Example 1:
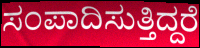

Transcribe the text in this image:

ಸಂಪಾದಿಸುತ್ತಿದ್ದರೆ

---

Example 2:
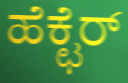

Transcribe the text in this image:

ಹೆಕ್ಟೆರ್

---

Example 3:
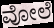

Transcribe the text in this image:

ವೋಲೆ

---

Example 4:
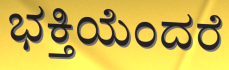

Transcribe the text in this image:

ಭಕ್ತಿಯೆಂದರೆ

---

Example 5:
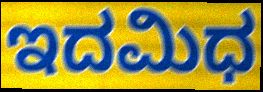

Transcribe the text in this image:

ಇದಮಿಧ